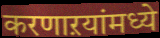
करणाऱयांमध्ये